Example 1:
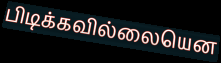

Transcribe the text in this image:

பிடிக்கவில்லையென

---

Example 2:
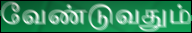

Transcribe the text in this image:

வேண்டுவதும்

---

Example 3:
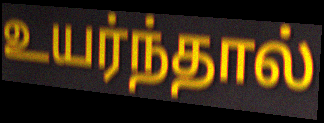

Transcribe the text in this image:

உயர்ந்தால்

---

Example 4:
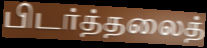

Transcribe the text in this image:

பிடர்த்தலைத்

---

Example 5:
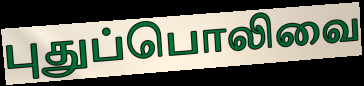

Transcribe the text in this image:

புதுப்பொலிவை